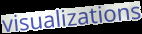
visualizations